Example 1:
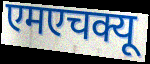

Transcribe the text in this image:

एमएचक्यू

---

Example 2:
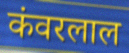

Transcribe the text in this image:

कंवरलाल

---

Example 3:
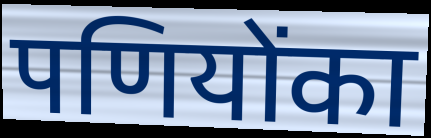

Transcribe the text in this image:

पणियोंका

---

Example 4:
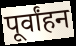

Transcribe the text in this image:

पूर्वांहन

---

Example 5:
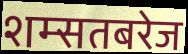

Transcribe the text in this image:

शम्सतबरेज